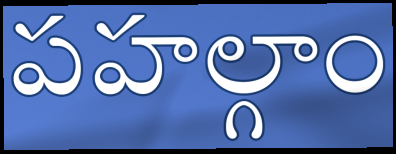
పహల్గాం